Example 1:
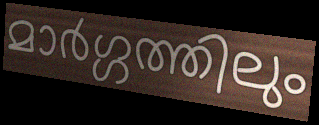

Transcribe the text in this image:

മാർഗ്ഗത്തിലും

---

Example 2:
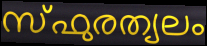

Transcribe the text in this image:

സ്ഫുരത്യലം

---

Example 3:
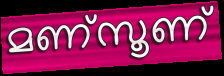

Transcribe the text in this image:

മണ്സൂണ്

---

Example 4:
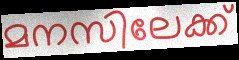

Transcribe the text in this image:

മനസിലേക്ക്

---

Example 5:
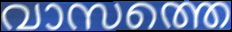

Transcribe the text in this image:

വാസത്തെ